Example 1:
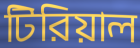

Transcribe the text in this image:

টিরিয়াল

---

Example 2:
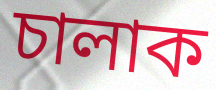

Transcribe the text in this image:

চালাক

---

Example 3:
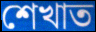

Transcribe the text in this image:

শেখাত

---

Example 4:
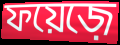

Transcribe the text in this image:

ফয়েজ়ে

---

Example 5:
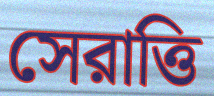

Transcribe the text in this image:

সেরাত্তি